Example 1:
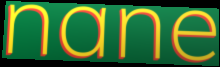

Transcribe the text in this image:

nane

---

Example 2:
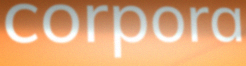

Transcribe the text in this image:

corpora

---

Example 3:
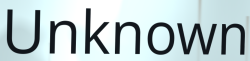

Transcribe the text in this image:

Unknown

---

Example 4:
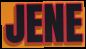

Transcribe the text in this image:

JENE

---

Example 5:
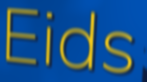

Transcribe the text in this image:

Eids